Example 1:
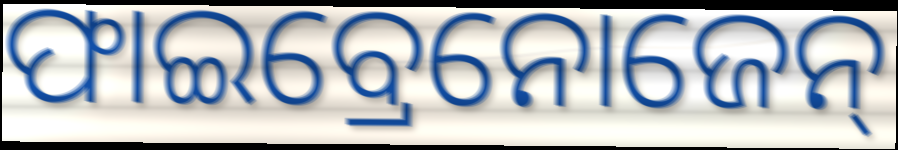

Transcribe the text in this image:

ଫାଇବ୍ରେନୋଜେନ୍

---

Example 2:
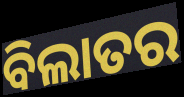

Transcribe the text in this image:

ବିଲାତର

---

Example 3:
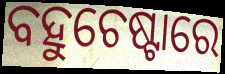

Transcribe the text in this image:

ବହୁଚେଷ୍ଟାରେ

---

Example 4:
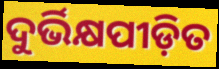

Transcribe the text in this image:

ଦୁର୍ଭିକ୍ଷପୀଡ଼ିତ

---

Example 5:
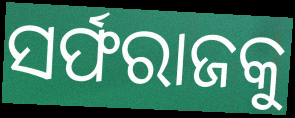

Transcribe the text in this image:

ସର୍ଫରାଜକୁ